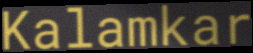
Kalamkar